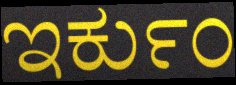
ಇರ್ಕುಂ